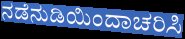
ನಡೆನುಡಿಯಿಂದಾಚರಿಸಿ